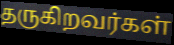
தருகிறவர்கள்